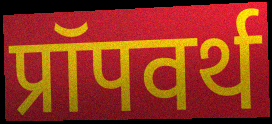
प्रॉपवर्थ